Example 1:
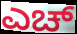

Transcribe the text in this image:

ಎಚ್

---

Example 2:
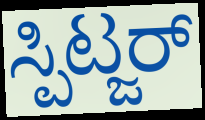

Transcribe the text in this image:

ಸ್ಪಿಟ್ಜರ್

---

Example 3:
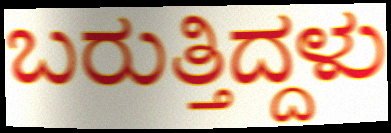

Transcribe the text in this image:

ಬರುತ್ತಿದ್ದಳು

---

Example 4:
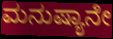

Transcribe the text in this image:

ಮನುಷ್ಯಾನೇ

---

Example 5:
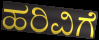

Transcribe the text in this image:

ಹರಿವಿಗೆ